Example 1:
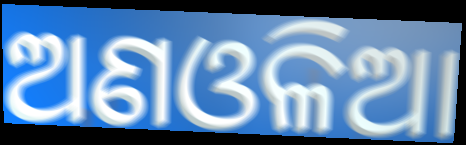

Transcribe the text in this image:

ଅଣଓଳିଆ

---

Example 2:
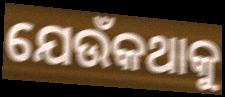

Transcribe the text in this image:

ଯେଉଁକଥାକୁ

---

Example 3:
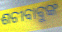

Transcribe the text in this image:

ଶଚୀବାବୁଙ୍କ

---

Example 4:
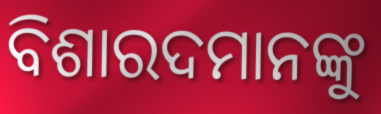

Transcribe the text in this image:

ବିଶାରଦମାନଙ୍କୁ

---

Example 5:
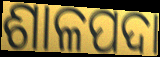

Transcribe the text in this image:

ଶାଳପଦା